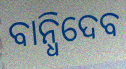
ବାନ୍ଧିଦେବ